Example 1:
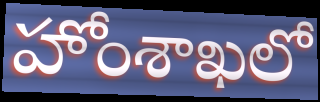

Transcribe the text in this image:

హోంశాఖలో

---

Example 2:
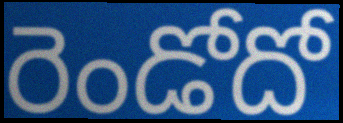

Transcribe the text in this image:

రెండోదో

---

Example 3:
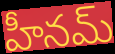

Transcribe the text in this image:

హీనమ్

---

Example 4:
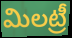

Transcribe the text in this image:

మిలట్రీ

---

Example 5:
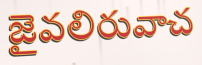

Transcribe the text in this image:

జైవలిరువాచ